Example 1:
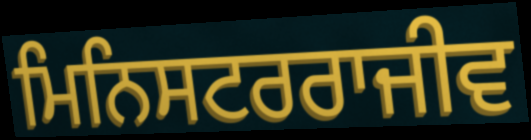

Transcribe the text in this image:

ਮਿਨਿਸਟਰਰਾਜੀਵ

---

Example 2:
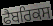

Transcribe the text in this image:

ਫੈਬਰਿਕਸ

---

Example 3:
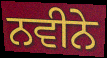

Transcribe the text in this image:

ਨਵੀਨੇ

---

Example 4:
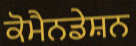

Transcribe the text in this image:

ਕੋਮੈਨਡੇਸ਼ਨ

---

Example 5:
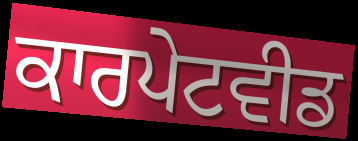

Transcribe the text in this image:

ਕਾਰਪੇਟਵੀਡ